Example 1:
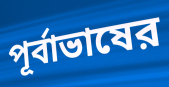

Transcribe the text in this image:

পূর্বাভাষের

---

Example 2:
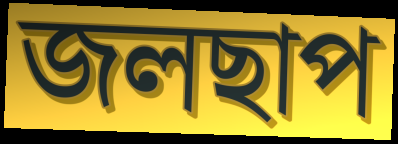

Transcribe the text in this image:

জলছাপ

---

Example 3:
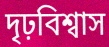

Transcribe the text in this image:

দৃঢ়বিশ্বাস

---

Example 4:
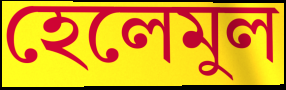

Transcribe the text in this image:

হেলেমুল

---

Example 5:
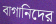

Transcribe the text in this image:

বাগানিদের